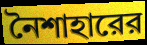
নৈশাহারের